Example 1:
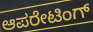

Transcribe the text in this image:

ಆಪರೇಟಿಂಗ್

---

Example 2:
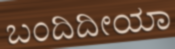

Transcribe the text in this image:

ಬಂದಿದೀಯಾ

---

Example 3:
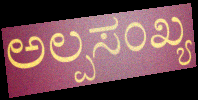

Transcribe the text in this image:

ಅಲ್ಪಸಂಖ್ಯ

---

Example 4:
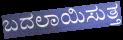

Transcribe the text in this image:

ಬದಲಾಯಿಸುತ್ತ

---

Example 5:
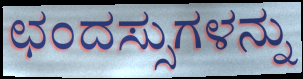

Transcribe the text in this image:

ಛಂದಸ್ಸುಗಳನ್ನು